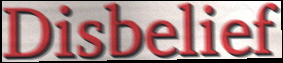
Disbelief